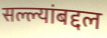
सल्ल्यांबद्दल